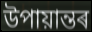
উপায়ান্তৰ